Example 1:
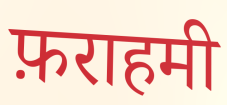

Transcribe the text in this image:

फ़राहमी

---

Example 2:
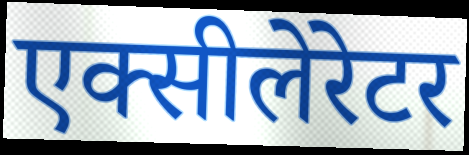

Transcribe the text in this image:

एक्सीलेरेटर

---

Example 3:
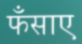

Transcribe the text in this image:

फँसाए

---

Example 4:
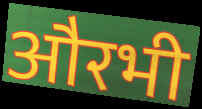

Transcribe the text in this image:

औरभी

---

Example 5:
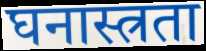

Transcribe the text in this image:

घनास्त्रता